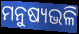
ମନୁଷ୍ୟଭଳି